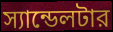
স্যান্ডেলটার